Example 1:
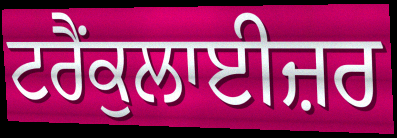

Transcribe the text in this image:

ਟਰੈਂਕੁਲਾਈਜ਼ਰ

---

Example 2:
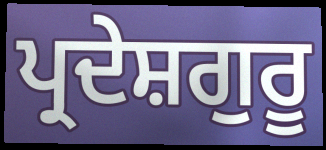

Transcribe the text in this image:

ਪ੍ਰਦੇਸ਼ਗੁਰੂ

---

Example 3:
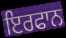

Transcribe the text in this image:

ਇਰਫਾਨ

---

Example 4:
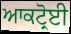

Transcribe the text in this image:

ਆਕਟ੍ਰੋਈ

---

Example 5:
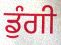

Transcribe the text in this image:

ਡੁੰਗੀ